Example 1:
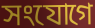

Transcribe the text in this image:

সংযোগে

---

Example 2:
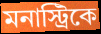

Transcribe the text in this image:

মনাস্ট্রিকে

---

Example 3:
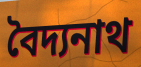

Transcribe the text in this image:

বৈদ্যনাথ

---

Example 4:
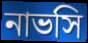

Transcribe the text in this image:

নাভসি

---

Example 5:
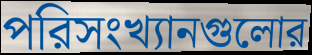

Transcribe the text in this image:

পরিসংখ্যানগুলোর